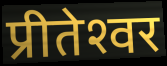
प्रीतेश्वर